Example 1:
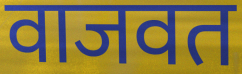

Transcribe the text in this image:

वाजवत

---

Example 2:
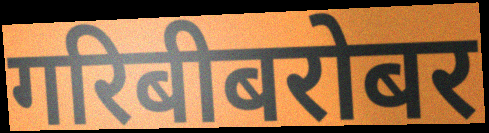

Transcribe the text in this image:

गरिबीबरोबर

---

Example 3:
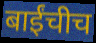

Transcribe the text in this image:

बाईंचीच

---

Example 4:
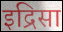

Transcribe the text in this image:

इद्रिसा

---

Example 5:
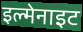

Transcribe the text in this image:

इल्मेनाइट